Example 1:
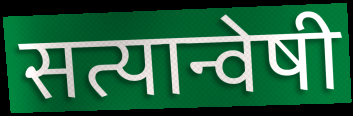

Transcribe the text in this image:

सत्यान्वेषी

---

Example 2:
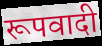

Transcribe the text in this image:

रूपवादी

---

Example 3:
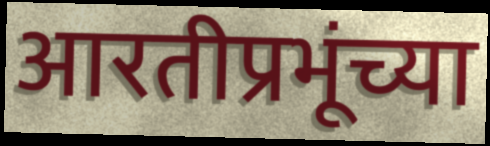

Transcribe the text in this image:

आरतीप्रभूंच्या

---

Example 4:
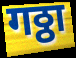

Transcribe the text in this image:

गठ्ठा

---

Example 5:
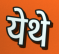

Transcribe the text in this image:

येथे